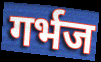
गर्भज